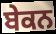
ਬੇਕਨ